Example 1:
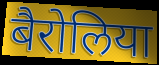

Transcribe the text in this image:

बैरोलिया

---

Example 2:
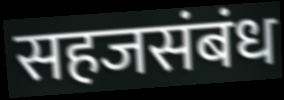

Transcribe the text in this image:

सहजसंबंध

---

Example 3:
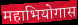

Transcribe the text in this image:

महाभियोगास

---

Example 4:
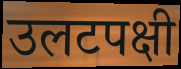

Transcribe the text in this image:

उलटपक्षी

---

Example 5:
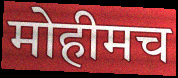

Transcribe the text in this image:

मोहीमच